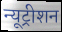
न्यूट्रीशन